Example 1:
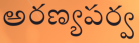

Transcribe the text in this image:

అరణ్యపర్వ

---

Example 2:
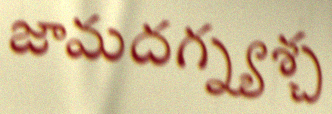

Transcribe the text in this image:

జామదగ్న్యశ్చ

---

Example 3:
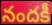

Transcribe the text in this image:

నందకీ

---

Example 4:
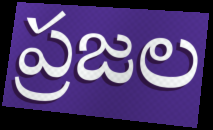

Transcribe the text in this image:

ప్రజల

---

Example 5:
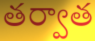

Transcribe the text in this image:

తర్వాత